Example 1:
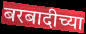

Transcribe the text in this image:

बरबादीच्या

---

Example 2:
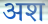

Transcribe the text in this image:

अश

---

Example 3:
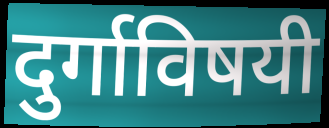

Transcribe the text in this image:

दुर्गाविषयी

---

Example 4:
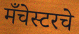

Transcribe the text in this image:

मँचेस्टरचे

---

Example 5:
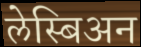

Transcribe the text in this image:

लेस्बिअन